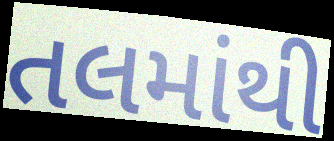
તલમાંથી